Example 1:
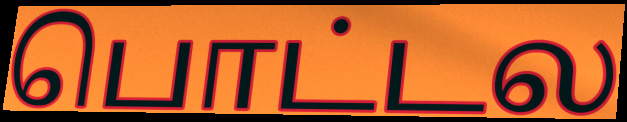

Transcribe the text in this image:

பொட்டல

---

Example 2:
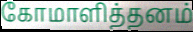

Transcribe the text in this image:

கோமாளித்தனம்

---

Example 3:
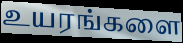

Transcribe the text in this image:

உயரங்களை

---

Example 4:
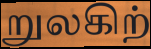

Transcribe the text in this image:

றுலகிற்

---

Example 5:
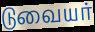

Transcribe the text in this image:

டுவையர்